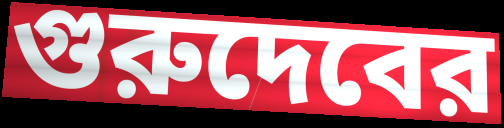
গুরুদেবের